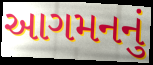
આગમનનું